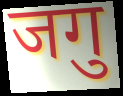
जगु